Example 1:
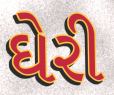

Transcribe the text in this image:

ઘેરી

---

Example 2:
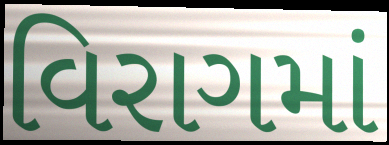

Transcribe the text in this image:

વિરાગમાં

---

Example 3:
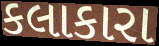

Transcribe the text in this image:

કલાકારા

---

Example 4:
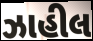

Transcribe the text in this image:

ઝાહીલ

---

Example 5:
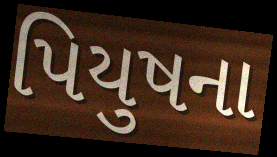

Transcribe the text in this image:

પિયુષના